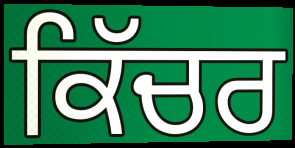
ਕਿੱਚਰ